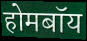
होमबॉय